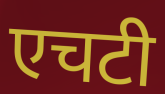
एचटी